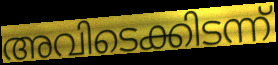
അവിടെക്കിടന്ന്